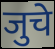
जुचे